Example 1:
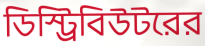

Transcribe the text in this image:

ডিস্ট্রিবিউটরের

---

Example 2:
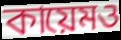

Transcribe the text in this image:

কায়েমও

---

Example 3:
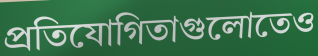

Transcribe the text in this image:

প্রতিযোগিতাগুলোতেও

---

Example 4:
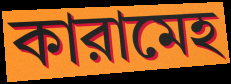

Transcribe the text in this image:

কারামেহ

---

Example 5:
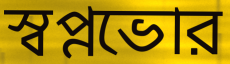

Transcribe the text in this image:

স্বপ্নভোর